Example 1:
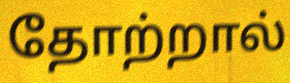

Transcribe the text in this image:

தோற்றால்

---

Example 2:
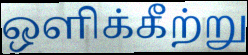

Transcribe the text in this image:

ஒளிக்கீற்று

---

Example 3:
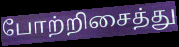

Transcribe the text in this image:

போற்றிசைத்து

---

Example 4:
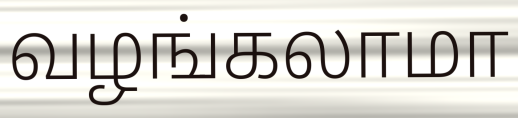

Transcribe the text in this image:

வழங்கலாமா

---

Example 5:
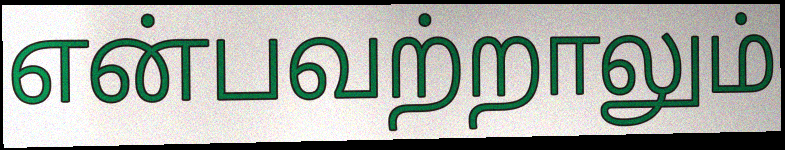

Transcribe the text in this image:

என்பவற்றாலும்